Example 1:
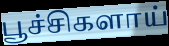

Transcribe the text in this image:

பூச்சிகளாய்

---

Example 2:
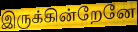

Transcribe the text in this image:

இருக்கின்றேனே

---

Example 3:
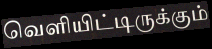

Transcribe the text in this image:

வெளியிட்டிருக்கும்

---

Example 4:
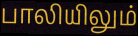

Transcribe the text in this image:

பாலியிலும்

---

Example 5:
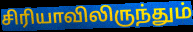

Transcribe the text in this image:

சிரியாவிலிருந்தும்